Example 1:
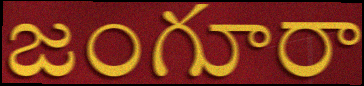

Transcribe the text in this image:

జంగూరా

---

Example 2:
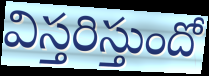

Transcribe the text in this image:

విస్తరిస్తుందో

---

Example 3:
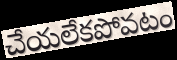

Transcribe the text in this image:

చేయలేకపోవటం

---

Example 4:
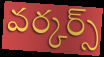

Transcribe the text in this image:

వర్కర్స్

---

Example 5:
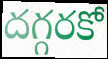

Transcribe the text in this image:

దగ్గరకో